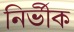
নিৰ্ভীক